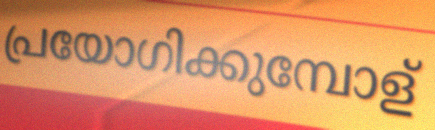
പ്രയോഗിക്കുമ്പോള്